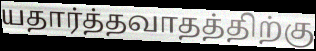
யதார்த்தவாதத்திற்கு